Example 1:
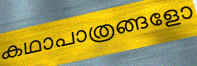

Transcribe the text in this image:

കഥാപാത്രങ്ങളോ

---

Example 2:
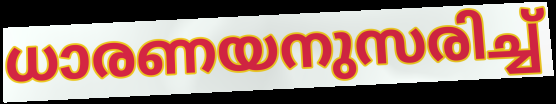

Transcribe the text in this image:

ധാരണയനുസരിച്ച്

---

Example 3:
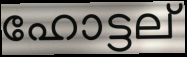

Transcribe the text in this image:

ഹോട്ടല്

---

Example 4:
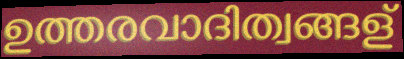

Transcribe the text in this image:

ഉത്തരവാദിത്വങ്ങള്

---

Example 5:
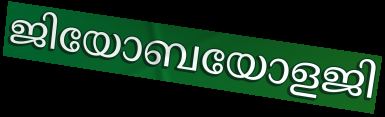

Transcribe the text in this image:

ജിയോബയോളജി